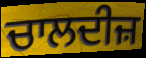
ਚਾਲਦੀਜ਼